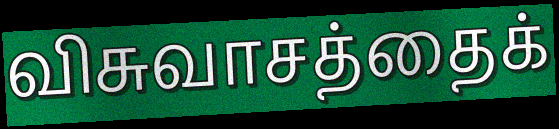
விசுவாசத்தைக்